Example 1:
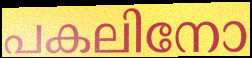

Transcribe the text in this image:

പകലിനോ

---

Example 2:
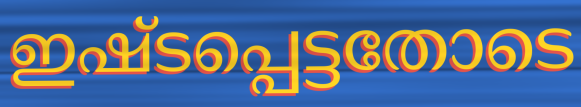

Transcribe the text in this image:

ഇഷ്ടപ്പെട്ടതോടെ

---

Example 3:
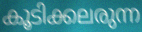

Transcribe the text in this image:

കൂടിക്കലരുന്ന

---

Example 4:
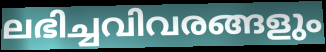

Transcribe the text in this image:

ലഭിച്ചവിവരങ്ങളും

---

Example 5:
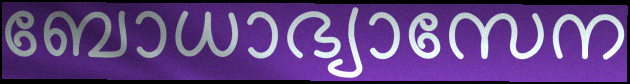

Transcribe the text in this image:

ബോധാഭ്യാസേന